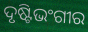
ଦୃଷ୍ଟିଭଂଗୀର